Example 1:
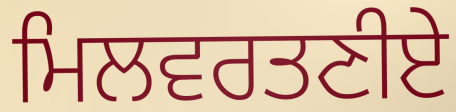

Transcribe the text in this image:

ਮਿਲਵਰਤਣੀਏ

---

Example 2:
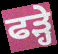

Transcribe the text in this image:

ਫੜ੍ਹੇ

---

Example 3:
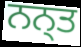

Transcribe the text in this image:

ਨਨ੍ਤ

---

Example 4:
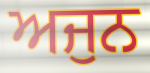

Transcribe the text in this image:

ਅਜੁਨ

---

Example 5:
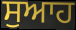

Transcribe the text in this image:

ਸੁਆਹ